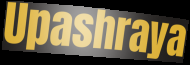
Upashraya